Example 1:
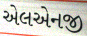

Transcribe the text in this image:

એલએનજી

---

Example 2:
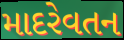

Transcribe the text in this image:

માદરેવતન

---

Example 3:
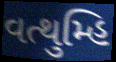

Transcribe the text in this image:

વત્થુમ્હિ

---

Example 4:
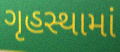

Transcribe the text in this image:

ગૃહસ્થામાં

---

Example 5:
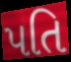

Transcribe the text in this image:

પતિ